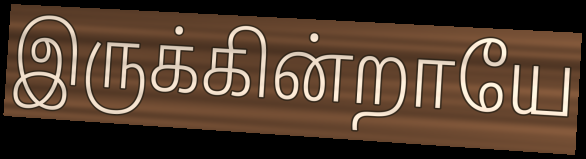
இருக்கின்றாயே